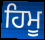
ਹਿਮੂ